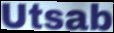
Utsab